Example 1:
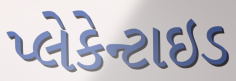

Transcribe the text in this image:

પ્લેકેન્ટાઇડ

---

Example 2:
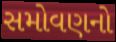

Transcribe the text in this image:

સમોવણનો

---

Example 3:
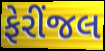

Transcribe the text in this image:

ફેરીંજલ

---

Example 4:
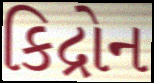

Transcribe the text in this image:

કિદ્રોન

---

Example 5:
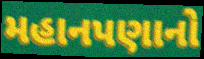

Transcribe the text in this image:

મહાનપણાનો